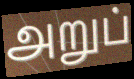
அறுப்